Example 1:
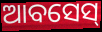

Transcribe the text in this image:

ଆବସେସ୍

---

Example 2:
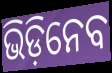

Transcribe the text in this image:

ଭିଡ଼ିନେବ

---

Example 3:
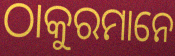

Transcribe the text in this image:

ଠାକୁରମାନେ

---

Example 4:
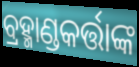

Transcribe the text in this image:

ବ୍ରହ୍ମାଣ୍ଡକର୍ତ୍ତାଙ୍କ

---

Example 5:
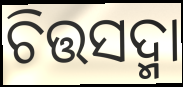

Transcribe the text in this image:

ଚିତ୍ତସଦ୍ମା